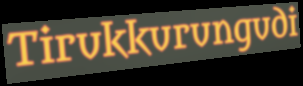
Tirukkurungudi